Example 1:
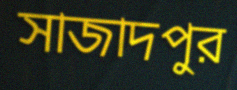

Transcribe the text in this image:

সাজাদপুর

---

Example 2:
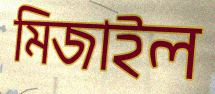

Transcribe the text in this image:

মিজাইল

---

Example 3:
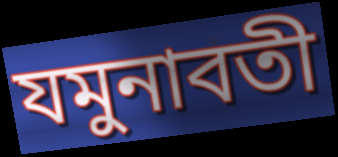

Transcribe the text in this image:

যমুনাবতী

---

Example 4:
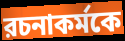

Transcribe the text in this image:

রচনাকর্মকে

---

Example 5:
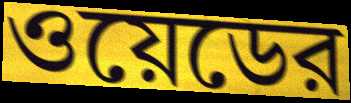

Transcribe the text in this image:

ওয়েডের